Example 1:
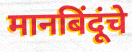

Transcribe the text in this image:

मानबिंदूंचे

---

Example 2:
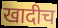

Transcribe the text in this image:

खादीच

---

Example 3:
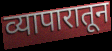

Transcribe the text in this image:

व्यापारातून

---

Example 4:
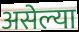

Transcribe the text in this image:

असेल्या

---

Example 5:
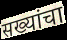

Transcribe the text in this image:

सख्यांचा